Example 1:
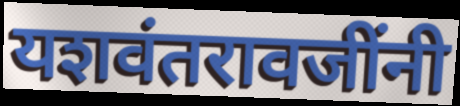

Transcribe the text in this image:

यशवंतरावजींनी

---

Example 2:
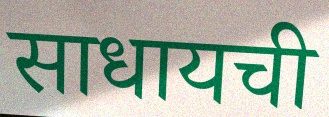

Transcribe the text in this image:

साधायची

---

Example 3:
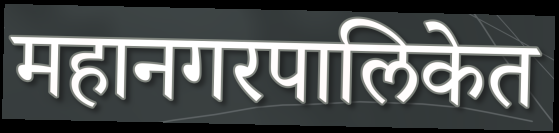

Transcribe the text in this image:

महानगरपालिकेत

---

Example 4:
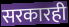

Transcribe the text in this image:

सरकारही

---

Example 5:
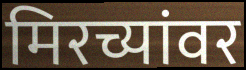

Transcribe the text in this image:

मिरच्यांवर